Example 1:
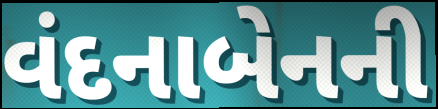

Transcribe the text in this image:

વંદનાબેનની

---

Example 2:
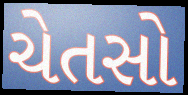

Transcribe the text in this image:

ચેતસો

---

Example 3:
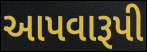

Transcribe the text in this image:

આપવારૂપી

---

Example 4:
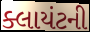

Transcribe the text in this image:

ક્લાયંટની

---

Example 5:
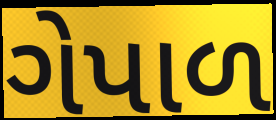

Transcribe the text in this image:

ગેપાળ